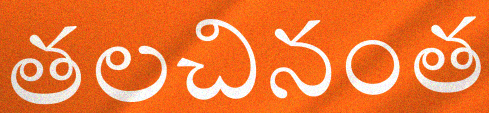
తలచినంత